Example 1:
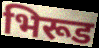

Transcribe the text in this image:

भिरूड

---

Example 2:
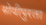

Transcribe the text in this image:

सोयीपुरता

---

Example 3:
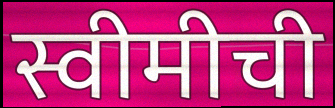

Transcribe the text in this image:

स्वीमीची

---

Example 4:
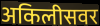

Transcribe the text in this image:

अकिलीसवर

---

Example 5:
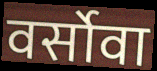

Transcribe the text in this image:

वर्सोवा